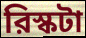
রিস্কটা